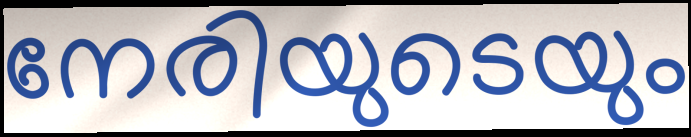
നേരിയുടെയും